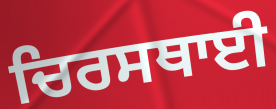
ਚਿਰਸਥਾਈ